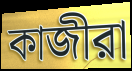
কাজীরা